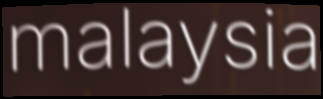
malaysia